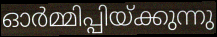
ഓർമ്മിപ്പിയ്ക്കുന്നു